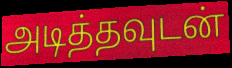
அடித்தவுடன்